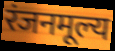
रंजनमूल्य